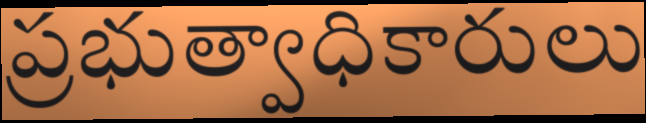
ప్రభుత్వాధికారులు